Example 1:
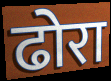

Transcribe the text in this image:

ढोरा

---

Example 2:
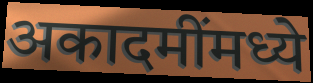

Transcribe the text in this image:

अकादमींमध्ये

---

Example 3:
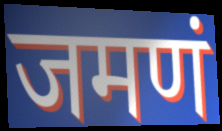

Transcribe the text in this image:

जमणं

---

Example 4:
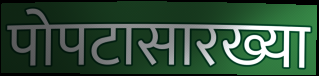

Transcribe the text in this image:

पोपटासारख्या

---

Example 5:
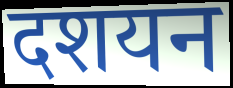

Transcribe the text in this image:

दशयन